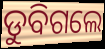
ଡୁବିଗଲେ